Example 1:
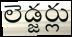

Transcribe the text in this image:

లెడ్జర్లు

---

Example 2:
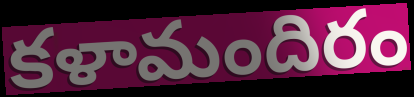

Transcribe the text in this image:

కళామందిరం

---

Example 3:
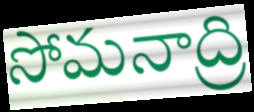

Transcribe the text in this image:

సోమనాద్రి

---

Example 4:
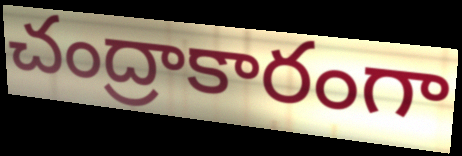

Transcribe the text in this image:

చంద్రాకారంగా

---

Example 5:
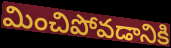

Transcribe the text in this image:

మించిపోవడానికి